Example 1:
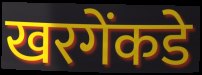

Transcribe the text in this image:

खरगेंकडे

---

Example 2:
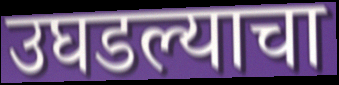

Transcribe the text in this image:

उघडल्याचा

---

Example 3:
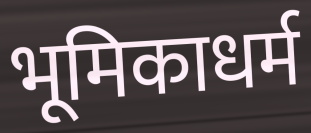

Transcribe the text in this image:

भूमिकाधर्म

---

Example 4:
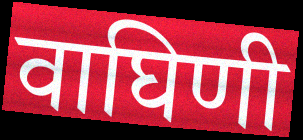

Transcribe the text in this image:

वाघिणी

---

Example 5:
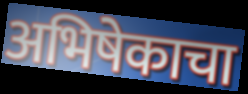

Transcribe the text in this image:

अभिषेकाचा